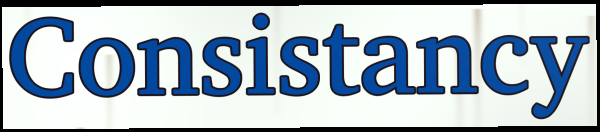
Consistancy